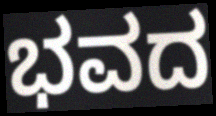
ಭವದ